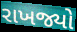
રાખજ્યો